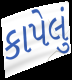
કાપેલું